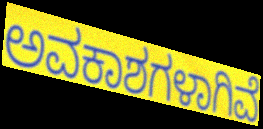
ಅವಕಾಶಗಳಾಗಿವೆ